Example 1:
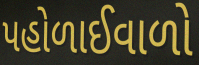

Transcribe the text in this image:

પહોળાઈવાળો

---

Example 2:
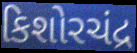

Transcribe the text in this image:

કિશોરચંદ્ર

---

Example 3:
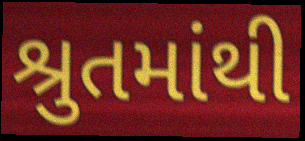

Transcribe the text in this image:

શ્રુતમાંથી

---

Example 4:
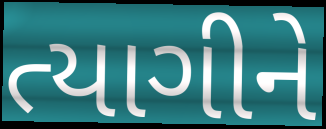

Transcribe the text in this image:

ત્યાગીને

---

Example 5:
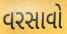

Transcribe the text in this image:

વરસાવો